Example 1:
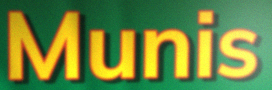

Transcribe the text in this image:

Munis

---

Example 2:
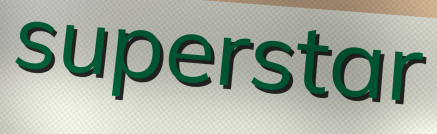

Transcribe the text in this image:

superstar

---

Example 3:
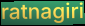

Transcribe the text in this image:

ratnagiri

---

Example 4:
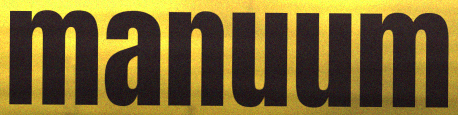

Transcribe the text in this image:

manuum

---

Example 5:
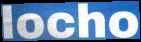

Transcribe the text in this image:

locho